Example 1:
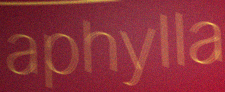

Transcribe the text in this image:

aphylla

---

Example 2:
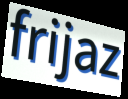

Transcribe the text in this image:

frijaz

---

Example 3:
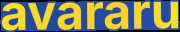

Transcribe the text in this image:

avararu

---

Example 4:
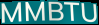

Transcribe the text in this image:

MMBTU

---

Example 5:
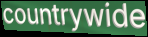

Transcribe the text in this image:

countrywide